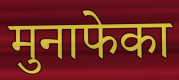
मुनाफेका